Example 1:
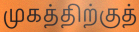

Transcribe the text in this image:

முகத்திற்குத்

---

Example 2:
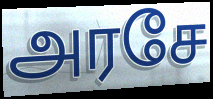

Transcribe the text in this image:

அரசே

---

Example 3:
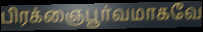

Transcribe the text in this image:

பிரக்ஞைபூர்வமாகவே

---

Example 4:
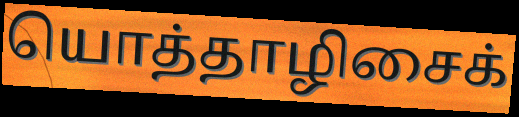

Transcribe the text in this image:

யொத்தாழிசைக்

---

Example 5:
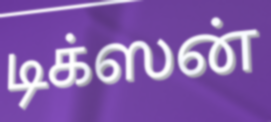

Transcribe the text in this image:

டிக்ஸன்